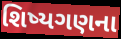
શિષ્યગણના